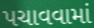
પચાવવામાં